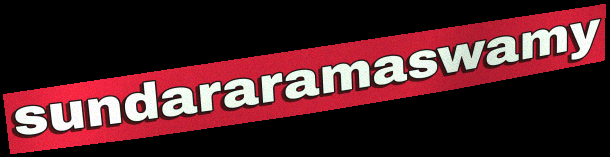
sundararamaswamy